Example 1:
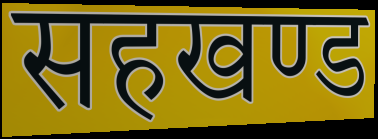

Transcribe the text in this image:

सहखण्ड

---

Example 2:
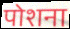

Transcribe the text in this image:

पोशना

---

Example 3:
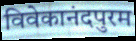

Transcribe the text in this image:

विवेकानंदपुरम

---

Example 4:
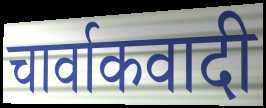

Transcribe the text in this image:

चार्वाकवादी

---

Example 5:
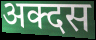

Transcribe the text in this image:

अक्दस